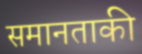
समानताकी